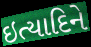
ઇત્‍યાદિને